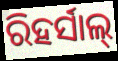
ରିହର୍ସାଲ୍